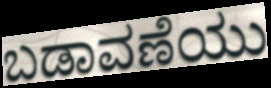
ಬಡಾವಣೆಯು